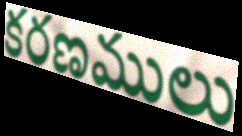
కరణములు